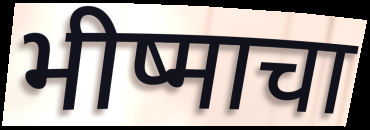
भीष्माचा